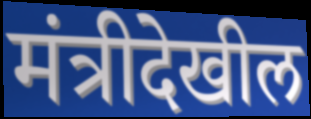
मंत्रीदेखील